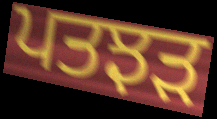
ਪਤਝੜ